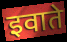
इवाते